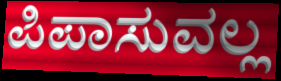
ಪಿಪಾಸುವಲ್ಲ